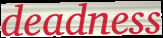
deadness